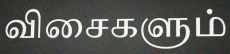
விசைகளும்